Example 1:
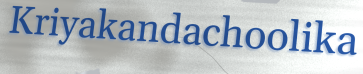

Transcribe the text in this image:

Kriyakandachoolika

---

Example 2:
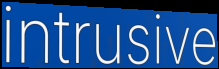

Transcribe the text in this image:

intrusive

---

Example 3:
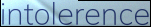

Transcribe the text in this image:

intolerence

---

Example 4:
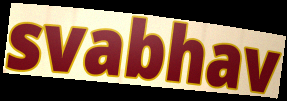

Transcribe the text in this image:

svabhav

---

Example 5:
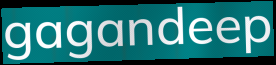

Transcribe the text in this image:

gagandeep